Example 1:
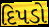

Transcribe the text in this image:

દિપડો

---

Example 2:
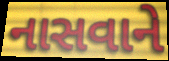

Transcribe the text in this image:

નાસવાને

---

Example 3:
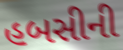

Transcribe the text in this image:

હબસીની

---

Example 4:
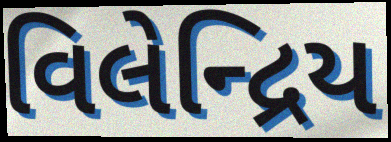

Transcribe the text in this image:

વિલેન્દ્રિય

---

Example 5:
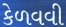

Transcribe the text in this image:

કેળવવી